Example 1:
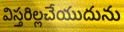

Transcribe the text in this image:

విస్తరిల్లచేయుదును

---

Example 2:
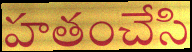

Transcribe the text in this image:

హతంచేసి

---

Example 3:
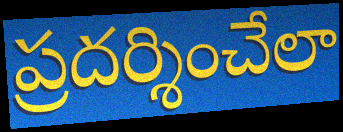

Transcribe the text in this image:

ప్రదర్శించేలా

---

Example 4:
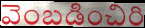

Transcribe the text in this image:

వెంబడించిరి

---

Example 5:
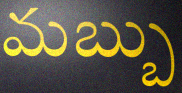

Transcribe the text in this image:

మబ్బు